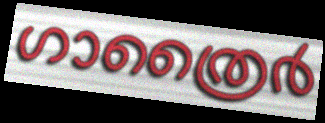
ഗാത്രൈർ